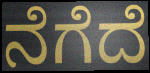
ನೆಗೆದೆ